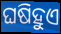
ଘଷିହୁଏ